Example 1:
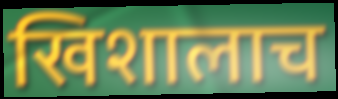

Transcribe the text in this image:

खिशालाच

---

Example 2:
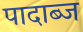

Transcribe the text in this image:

पादाब्ज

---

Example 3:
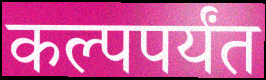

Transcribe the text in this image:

कल्पपर्यंत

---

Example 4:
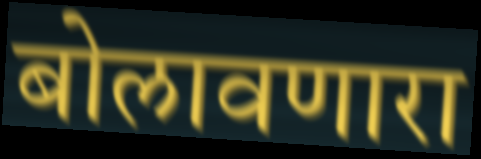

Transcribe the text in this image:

बोलावणारा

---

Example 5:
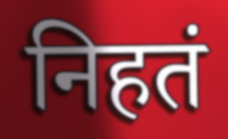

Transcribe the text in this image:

निहतं